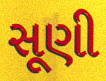
સૂણી